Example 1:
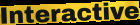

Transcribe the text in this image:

Interactive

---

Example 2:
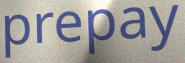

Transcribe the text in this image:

prepay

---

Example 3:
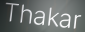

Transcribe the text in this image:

Thakar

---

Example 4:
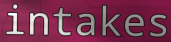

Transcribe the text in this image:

intakes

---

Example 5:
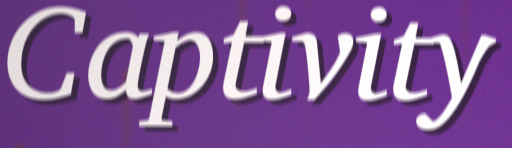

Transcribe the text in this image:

Captivity